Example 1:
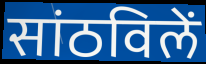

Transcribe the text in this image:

सांठविलें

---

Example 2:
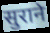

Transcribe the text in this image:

सुराने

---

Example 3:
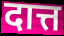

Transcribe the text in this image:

दात्त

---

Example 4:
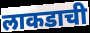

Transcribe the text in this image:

लाकडाची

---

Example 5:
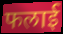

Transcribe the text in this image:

फलाई